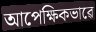
আপেক্ষিকভাৱে